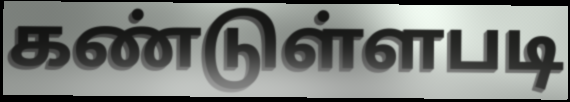
கண்டுள்ளபடி